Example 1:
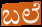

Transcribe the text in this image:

ಬಲೆ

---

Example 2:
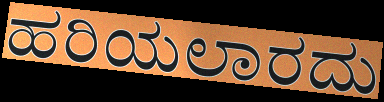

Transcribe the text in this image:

ಹರಿಯಲಾರದು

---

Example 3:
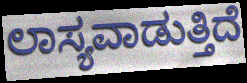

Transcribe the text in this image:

ಲಾಸ್ಯವಾಡುತ್ತಿದೆ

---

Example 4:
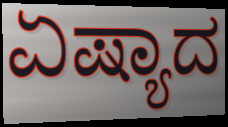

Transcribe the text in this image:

ಏಷ್ಯಾದ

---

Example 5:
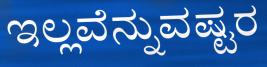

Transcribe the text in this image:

ಇಲ್ಲವೆನ್ನುವಷ್ಟರ